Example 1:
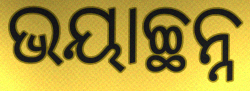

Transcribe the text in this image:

ଭୟାଚ୍ଛନ୍ନ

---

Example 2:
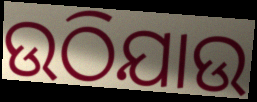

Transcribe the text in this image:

ଉଠିଯାଉ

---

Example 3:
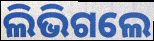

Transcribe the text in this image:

ଲିଭିଗଲେ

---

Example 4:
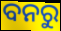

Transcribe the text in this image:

ବନରୁ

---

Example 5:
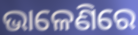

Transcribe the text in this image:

ଭାଳେଣିରେ